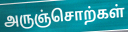
அருஞ்சொற்கள்